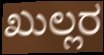
ಖುಲ್ಲರ